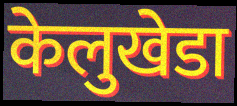
केलुखेडा